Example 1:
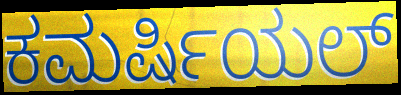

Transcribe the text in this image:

ಕಮರ್ಷಿಯಲ್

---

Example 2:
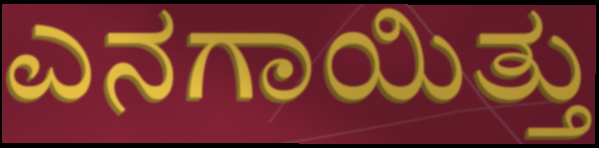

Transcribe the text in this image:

ಎನಗಾಯಿತ್ತು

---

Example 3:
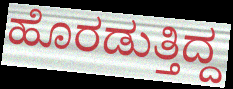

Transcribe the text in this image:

ಹೊರಡುತ್ತಿದ್ದ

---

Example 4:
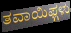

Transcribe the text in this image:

ತವಾಯಿಫ್ಗಳು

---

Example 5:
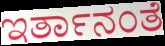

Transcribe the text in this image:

ಇರ್ತಾನಂತೆ